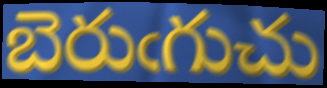
బెరుఁగుచు